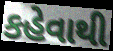
કહેવાથી